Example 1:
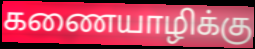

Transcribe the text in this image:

கணையாழிக்கு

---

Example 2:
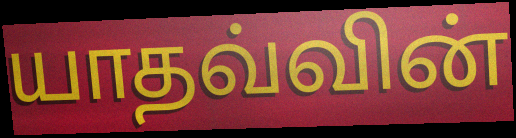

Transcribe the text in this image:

யாதவ்வின்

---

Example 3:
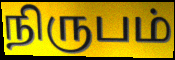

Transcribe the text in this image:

நிருபம்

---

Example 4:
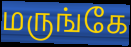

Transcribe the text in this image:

மருங்கே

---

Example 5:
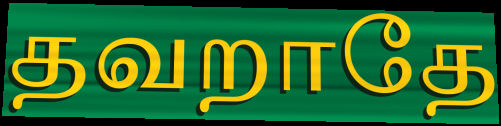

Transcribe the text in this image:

தவறாதே